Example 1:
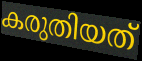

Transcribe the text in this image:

കരുതിയത്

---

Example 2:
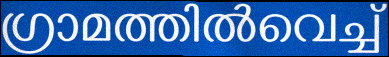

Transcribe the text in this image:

ഗ്രാമത്തിൽവെച്ച്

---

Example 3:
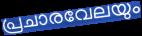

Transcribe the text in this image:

പ്രചാരവേലയും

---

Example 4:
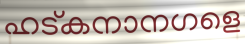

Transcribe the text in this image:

ഹട്കനാനഗളെ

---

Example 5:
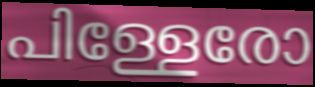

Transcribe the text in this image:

പിള്ളേരോ